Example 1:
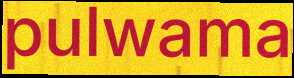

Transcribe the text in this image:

pulwama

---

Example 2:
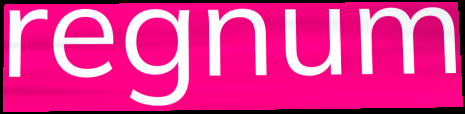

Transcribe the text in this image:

regnum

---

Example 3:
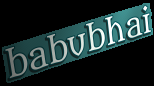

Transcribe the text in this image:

babubhai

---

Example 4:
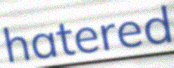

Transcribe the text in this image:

hatered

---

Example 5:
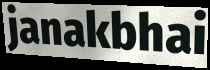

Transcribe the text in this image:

janakbhai